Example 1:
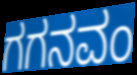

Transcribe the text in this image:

ಗಗನವಂ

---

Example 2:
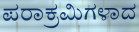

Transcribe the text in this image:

ಪರಾಕ್ರಮಿಗಳಾದ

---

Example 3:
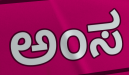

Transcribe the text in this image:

ಅಂಸ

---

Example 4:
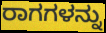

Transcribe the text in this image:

ರಾಗಗಳನ್ನು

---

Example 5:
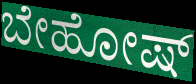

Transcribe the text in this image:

ಬೇಹೋಷ್